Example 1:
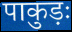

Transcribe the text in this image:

पाकुड़ः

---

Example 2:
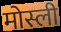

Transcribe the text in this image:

मोस्ली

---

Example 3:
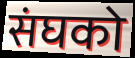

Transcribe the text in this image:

संघको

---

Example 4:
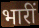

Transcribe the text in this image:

भारीं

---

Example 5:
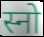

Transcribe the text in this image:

स्नो